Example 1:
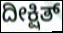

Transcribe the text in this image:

ದೀಕ್ಷಿತ್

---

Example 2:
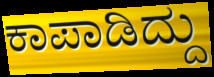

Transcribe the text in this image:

ಕಾಪಾಡಿದ್ದು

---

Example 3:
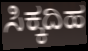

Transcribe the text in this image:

ಸಿಕ್ಕದಿಹ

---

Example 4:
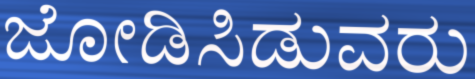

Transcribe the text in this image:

ಜೋಡಿಸಿಡುವರು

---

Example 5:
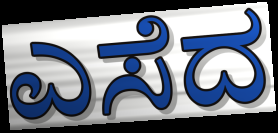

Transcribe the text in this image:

ಎಸೆದ